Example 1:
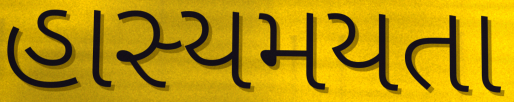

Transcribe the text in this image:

હાસ્યમયતા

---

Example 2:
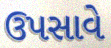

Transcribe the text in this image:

ઉપસાવે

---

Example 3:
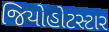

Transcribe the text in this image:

જિયોહોટસ્ટાર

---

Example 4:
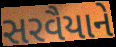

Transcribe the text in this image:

સરવૈયાને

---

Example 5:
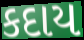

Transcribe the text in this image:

કદાય